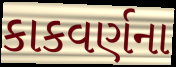
કાકવર્ણના